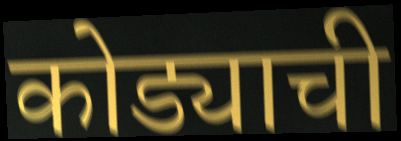
कोड्याची